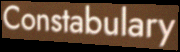
Constabulary